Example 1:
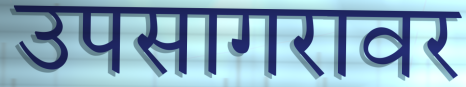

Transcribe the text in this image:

उपसागरावर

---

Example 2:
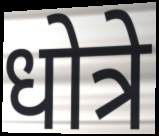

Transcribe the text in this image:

धोत्रे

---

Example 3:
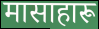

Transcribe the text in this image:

मासाहारू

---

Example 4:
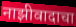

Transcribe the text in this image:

नाझीवादाचा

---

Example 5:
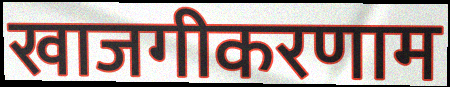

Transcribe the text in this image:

खाजगीकरणाम